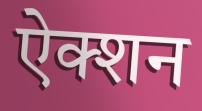
ऐक्‍शन